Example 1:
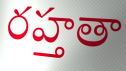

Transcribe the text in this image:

రహ్తతా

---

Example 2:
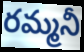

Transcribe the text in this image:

రమ్మనీ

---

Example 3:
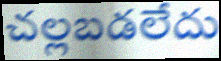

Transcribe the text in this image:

చల్లబడలేదు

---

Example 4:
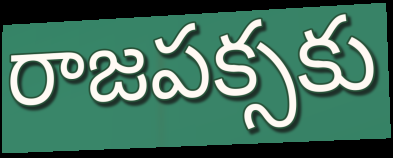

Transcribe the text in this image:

రాజపక్సకు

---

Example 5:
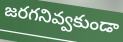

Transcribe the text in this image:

జరగనివ్వకుండా